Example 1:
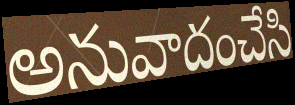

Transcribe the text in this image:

అనువాదంచేసి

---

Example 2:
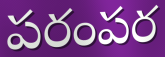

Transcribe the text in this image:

పరంపర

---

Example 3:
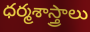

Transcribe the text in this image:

ధర్మశాస్త్రాలు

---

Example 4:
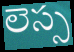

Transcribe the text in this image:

లెస్స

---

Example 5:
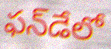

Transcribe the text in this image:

ఫన్‌డేలో